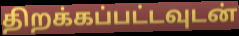
திறக்கப்பட்டவுடன்